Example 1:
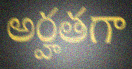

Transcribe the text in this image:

అర్హతగా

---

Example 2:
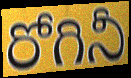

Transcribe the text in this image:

రోగినీ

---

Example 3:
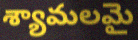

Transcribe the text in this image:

శ్యామలమై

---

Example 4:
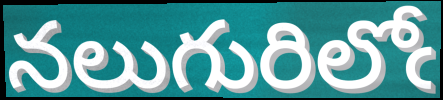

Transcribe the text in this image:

నలుగురిలోఁ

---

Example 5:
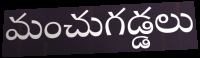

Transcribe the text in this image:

మంచుగడ్డలు